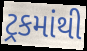
ટ્રકમાંથી